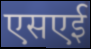
एसएई